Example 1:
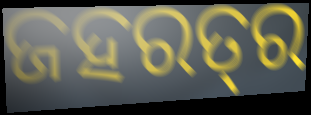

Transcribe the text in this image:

ଜହରତ୍‌ର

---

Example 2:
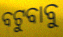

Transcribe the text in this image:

ବଟୁବାବୁ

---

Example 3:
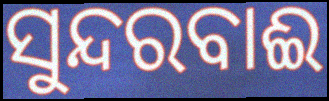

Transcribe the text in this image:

ସୁନ୍ଦରବାଈ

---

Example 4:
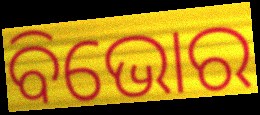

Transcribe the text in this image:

ବିଭୋର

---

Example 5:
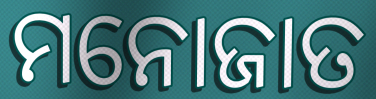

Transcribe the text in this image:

ମନୋଜାତ